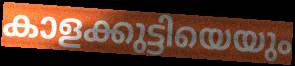
കാളക്കുട്ടിയെയും